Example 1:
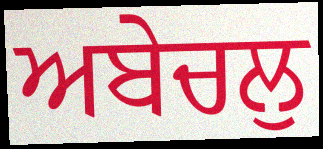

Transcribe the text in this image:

ਅਬੇਚਲੁ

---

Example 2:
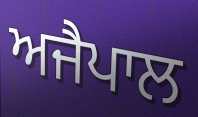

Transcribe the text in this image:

ਅਜੈਪਾਲ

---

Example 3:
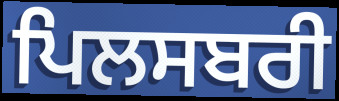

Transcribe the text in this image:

ਪਿਲਸਬਰੀ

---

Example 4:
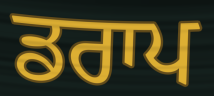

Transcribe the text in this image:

ਡਰਾਪ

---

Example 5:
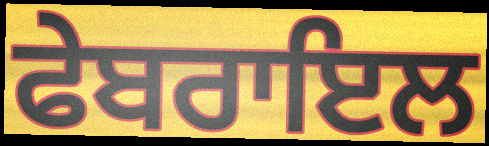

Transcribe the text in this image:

ਫੇਬਰਾਇਲ